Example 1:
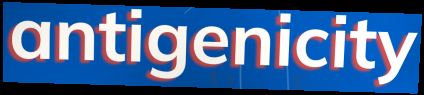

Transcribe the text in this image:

antigenicity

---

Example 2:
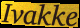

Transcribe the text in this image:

Ivakke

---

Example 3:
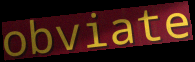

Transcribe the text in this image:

obviate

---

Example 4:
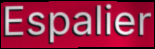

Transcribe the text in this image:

Espalier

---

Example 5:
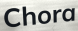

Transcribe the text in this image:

Chora